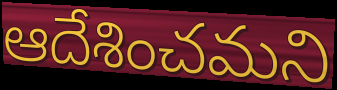
ఆదేశించమని